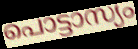
പൊട്ടാസ്യം